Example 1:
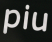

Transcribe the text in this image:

piu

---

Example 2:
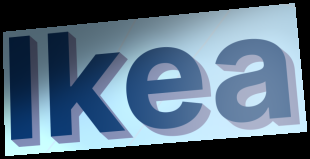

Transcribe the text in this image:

Ikea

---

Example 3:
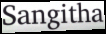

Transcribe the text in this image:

Sangitha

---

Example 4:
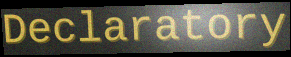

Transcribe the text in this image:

Declaratory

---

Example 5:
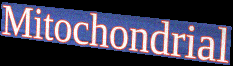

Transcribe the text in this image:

Mitochondrial